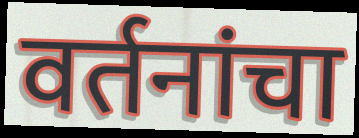
वर्तनांचा